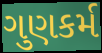
ગુણકર્મ